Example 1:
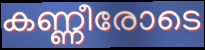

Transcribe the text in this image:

കണ്ണീരോടെ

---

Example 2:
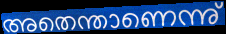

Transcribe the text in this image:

അതെന്താണെന്നു്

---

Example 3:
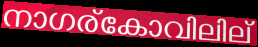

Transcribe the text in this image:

നാഗര്കോവിലില്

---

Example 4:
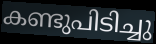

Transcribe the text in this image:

കണ്ടുപിടിച്ചു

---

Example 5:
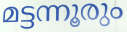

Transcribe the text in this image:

മട്ടന്നൂരും